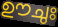
ഊചുഃ